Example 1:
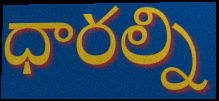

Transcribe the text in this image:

ధారల్ని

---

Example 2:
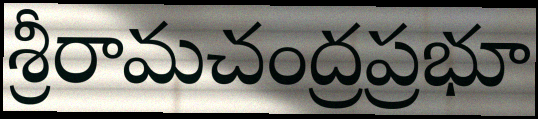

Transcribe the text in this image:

శ్రీరామచంద్రప్రభూ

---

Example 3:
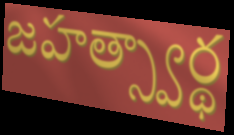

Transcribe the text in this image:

జహత్స్వార్థ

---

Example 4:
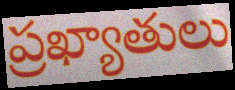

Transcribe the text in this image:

ప్రఖ్యాతులు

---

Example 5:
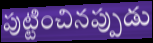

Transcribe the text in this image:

పుట్టించినప్పుడు